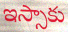
ఇస్సాకు